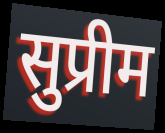
सुप्रीम